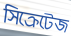
সিক্রেটেজ